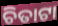
ଚିତାଟା